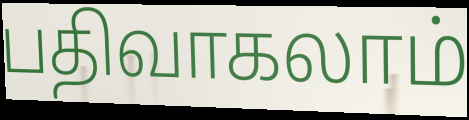
பதிவாகலாம்